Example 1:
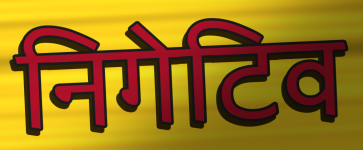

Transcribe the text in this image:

निगेटिव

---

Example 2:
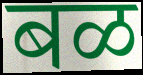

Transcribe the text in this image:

बळ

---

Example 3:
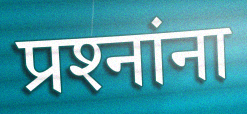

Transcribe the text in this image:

प्रश्‍नांना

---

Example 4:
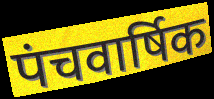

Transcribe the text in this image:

पंचवार्षिक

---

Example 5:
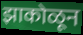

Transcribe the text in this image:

झाकोळून